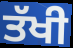
ਤੱਖੀ